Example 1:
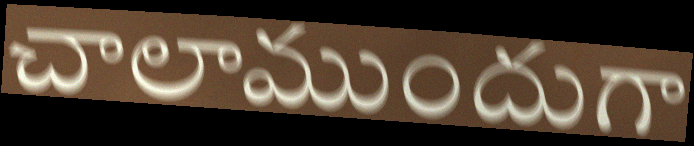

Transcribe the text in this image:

చాలాముందుగా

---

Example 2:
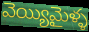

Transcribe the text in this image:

వెయ్యిమైళ్ళ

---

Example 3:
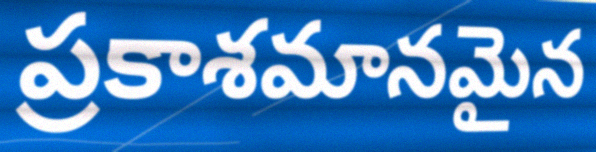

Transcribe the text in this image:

ప్రకాశమానమైన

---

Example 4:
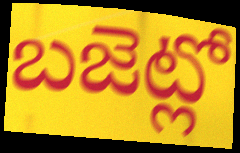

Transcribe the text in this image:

బజెట్లో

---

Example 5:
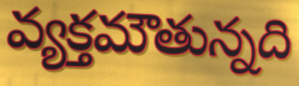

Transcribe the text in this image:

వ్యక్తమౌతున్నది